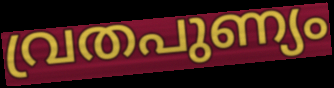
വ്രതപുണ്യം